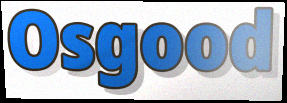
Osgood